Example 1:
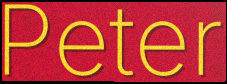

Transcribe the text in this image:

Peter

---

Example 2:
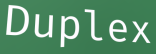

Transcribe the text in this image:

Duplex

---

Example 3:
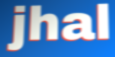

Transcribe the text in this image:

jhal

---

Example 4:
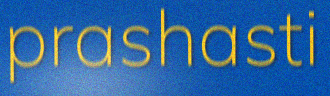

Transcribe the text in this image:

prashasti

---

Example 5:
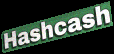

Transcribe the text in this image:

Hashcash